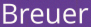
Breuer